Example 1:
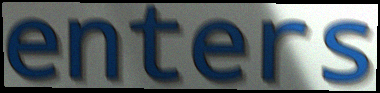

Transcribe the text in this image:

enters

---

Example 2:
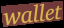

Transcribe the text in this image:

wallet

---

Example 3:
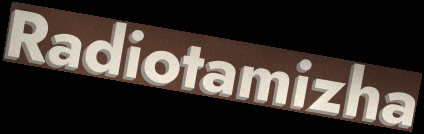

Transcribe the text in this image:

Radiotamizha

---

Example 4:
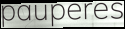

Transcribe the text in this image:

pauperes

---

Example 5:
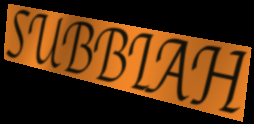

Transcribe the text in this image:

SUBBIAH